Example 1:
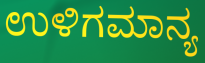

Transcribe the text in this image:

ಉಳಿಗಮಾನ್ಯ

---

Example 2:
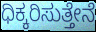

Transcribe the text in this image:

ಧಿಕ್ಕರಿಸುತ್ತೇನೆ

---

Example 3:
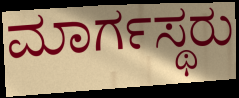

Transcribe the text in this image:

ಮಾರ್ಗಸ್ಥರು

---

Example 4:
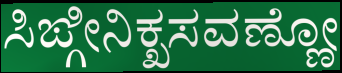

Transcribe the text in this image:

ಸಿಙ್ಗೀನಿಕ್ಖಸವಣ್ಣೋ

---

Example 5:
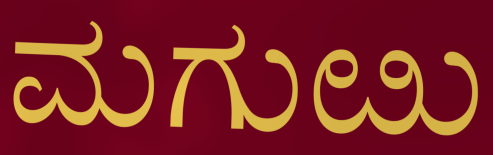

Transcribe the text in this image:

ಮಗುೞು